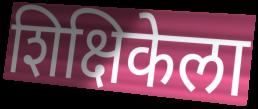
शिक्षिकेला